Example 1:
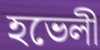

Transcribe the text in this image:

হভেলী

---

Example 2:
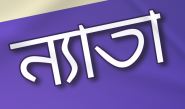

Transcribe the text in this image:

ন্যাতা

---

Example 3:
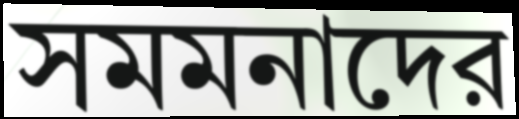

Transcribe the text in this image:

সমমনাদের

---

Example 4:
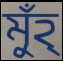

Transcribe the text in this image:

মুঁহ্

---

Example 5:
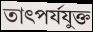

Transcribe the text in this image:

তাৎপর্যযুক্ত